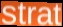
strat